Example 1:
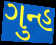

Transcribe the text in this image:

ગુન્હ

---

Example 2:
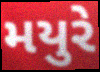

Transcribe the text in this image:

મયુરે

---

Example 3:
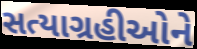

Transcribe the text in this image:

સત્યાગ્રહીઓને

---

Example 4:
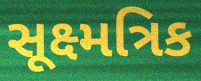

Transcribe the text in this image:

સૂક્ષ્મત્રિક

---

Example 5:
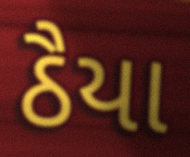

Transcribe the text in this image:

ઠૈયા